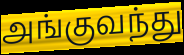
அங்குவந்து